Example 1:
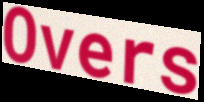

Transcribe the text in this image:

Overs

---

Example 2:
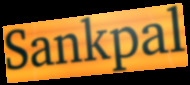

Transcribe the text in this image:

Sankpal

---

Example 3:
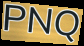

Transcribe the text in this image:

PNQ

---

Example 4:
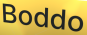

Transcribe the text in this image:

Boddo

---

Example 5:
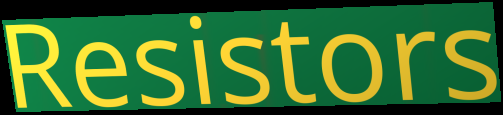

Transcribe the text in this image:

Resistors